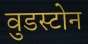
वुडस्टोन